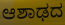
ಆಶಾಢದ